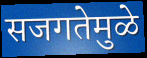
सजगतेमुळे